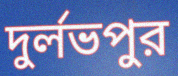
দুর্লভপুর